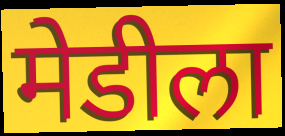
मेडीला